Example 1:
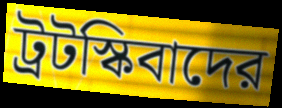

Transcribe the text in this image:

ট্রটস্কিবাদের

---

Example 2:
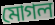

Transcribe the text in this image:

মোগল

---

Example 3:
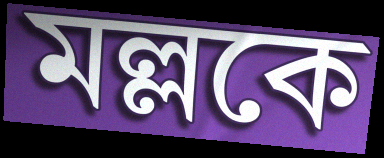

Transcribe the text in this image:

মল্লকে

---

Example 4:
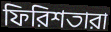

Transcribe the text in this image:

ফিরিশতারা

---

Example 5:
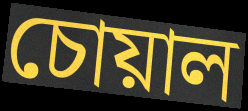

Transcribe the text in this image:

চোয়াল